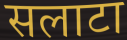
सलाटा